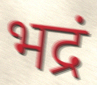
भद्रं